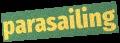
parasailing